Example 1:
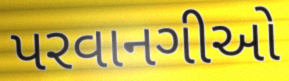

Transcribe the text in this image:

પરવાનગીઓ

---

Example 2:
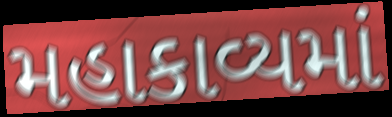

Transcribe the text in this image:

મહાકાવ્યમાં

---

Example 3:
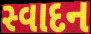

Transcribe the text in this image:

સ્વાદન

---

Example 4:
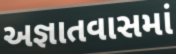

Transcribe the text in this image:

અજ્ઞાતવાસમાં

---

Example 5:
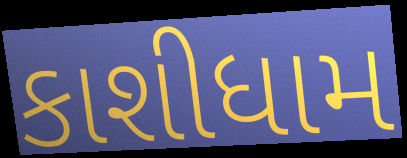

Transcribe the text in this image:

કાશીધામ